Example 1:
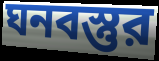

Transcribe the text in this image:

ঘনবস্তুর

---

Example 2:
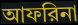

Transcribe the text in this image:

আফরিনা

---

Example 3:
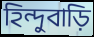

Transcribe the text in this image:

হিন্দুবাড়ি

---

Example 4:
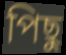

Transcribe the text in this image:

পিছু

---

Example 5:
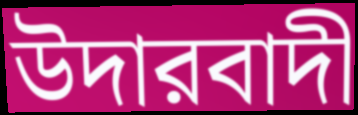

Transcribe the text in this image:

উদারবাদী